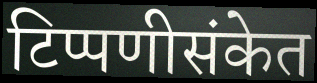
टिप्पणीसंकेत